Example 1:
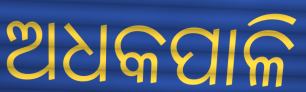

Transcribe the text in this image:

ଅଧକପାଳି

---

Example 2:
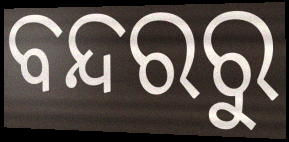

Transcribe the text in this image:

ବନ୍ଦରରୁ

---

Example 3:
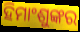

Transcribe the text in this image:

ହିମାଂଶୁଙ୍କର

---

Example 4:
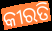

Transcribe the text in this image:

କୀରତି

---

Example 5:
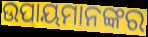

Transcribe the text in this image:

ଉପାୟମାନଙ୍କର